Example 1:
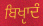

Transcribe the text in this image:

ਬਿਖੵਾਦੰ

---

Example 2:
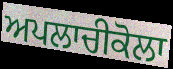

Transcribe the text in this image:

ਅਪਲਾਚੀਕੋਲਾ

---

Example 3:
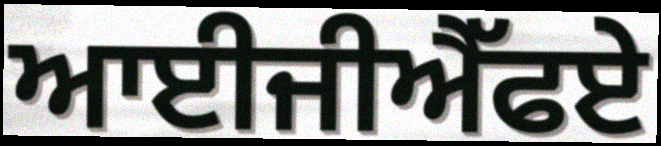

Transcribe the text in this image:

ਆਈਜੀਐੱਫਏ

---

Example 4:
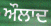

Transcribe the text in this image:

ਔਲਾਦ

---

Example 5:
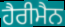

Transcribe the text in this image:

ਹੈਰੀਮੈਨ